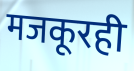
मजकूरही